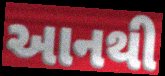
આનથી